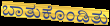
ಬಾತುಕೊಂಡಿತು